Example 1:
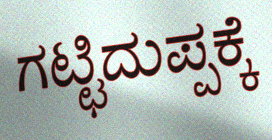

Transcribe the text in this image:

ಗಟ್ಟಿದುಪ್ಪಕ್ಕೆ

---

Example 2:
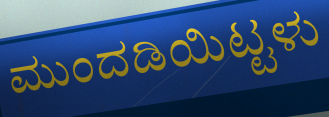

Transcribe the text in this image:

ಮುಂದಡಿಯಿಟ್ಟಳು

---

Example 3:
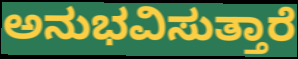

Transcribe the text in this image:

ಅನುಭವಿಸುತ್ತಾರೆ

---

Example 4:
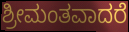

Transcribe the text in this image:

ಶ್ರೀಮಂತವಾದರೆ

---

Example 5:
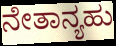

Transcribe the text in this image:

ನೇತಾನ್ಯಹು